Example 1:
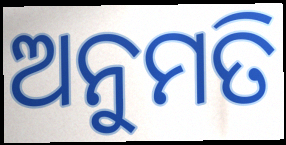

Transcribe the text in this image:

ଅନୁମତି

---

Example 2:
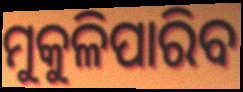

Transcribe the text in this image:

ମୁକୁଳିପାରିବ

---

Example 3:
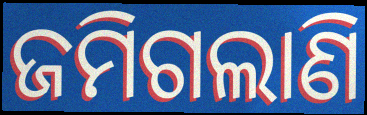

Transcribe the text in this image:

ଜମିଗଲାଣି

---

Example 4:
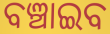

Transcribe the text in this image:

ବଞ୍ଚାଇବ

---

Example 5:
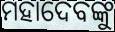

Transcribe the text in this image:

ମହାଦେବଙ୍କୁ